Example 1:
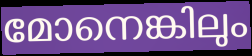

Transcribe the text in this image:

മോനെങ്കിലും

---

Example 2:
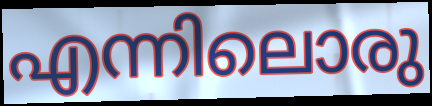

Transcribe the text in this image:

എന്നിലൊരു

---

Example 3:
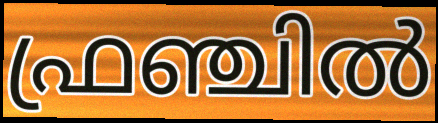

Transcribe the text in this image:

ഫ്രഞ്ചിൽ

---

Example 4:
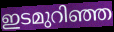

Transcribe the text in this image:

ഇടമുറിഞ്ഞ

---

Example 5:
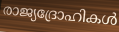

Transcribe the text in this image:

രാജ്യദ്രോഹികൾ